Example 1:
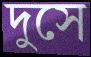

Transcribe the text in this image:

দুসে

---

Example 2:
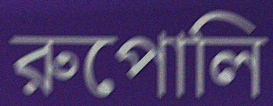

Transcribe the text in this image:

রুপোলি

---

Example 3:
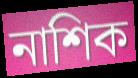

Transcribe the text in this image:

নাশিক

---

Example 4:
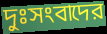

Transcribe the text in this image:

দুঃসংবাদের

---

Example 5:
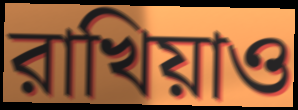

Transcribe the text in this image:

রাখিয়াও